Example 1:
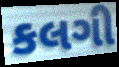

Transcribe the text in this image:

કલગી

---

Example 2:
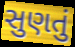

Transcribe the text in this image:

સુણતું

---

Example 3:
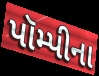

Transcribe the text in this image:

પૉમ્પીના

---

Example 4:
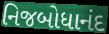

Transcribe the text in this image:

નિજબોધાનંદ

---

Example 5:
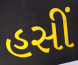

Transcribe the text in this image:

હસીં